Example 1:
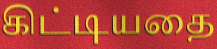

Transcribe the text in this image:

கிட்டியதை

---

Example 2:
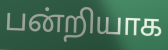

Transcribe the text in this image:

பன்றியாக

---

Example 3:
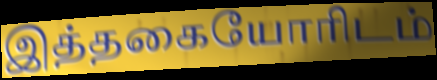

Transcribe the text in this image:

இத்தகையோரிடம்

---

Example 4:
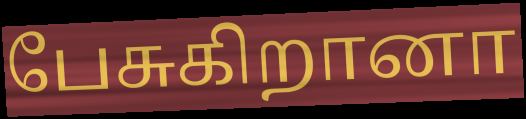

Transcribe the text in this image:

பேசுகிறானா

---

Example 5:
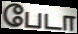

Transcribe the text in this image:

பேடா